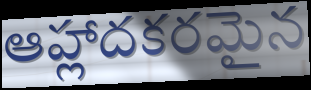
ఆహ్లాదకరమైన